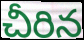
చీరిన